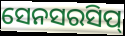
ସେନସରସିପ୍